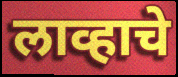
लाव्हाचे